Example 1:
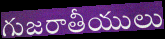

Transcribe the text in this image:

గుజరాతీయులు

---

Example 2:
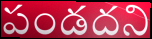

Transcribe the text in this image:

పండదని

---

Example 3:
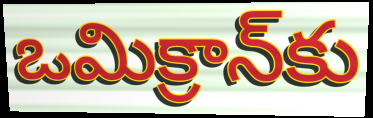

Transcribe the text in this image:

ఒమిక్రాన్‌కు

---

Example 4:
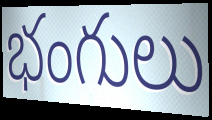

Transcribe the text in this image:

భంగులు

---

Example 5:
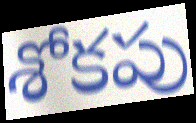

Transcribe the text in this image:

శోకపు